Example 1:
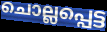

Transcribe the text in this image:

ചൊല്ലപ്പെട്ട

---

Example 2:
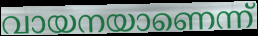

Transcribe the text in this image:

വായനയാണെന്ന്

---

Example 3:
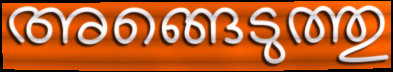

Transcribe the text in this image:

അങ്ങെടുത്തു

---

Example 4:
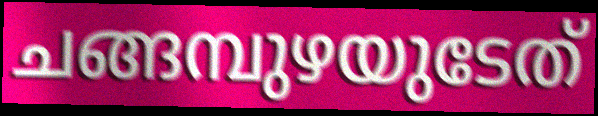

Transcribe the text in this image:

ചങ്ങമ്പുഴയുടേത്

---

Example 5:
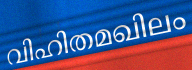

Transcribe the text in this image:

വിഹിതമഖിലം